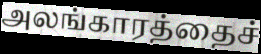
அலங்காரத்தைச்